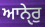
ਆਨੇੑਰੁ